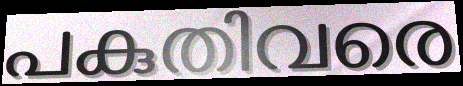
പകുതിവരെ